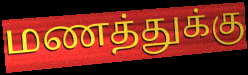
மணத்துக்கு